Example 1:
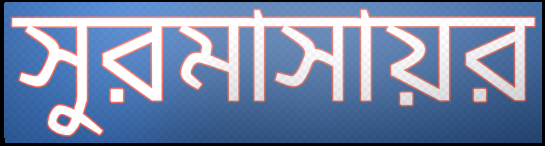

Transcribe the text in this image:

সুরমাসায়র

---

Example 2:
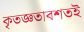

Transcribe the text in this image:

কৃতজ্ঞতাবশতই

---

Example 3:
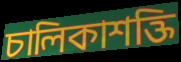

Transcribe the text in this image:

চালিকাশক্তি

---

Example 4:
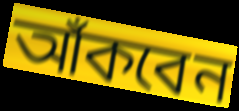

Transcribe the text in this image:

আঁকবেন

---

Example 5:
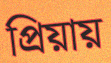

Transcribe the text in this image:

প্রিয়ায়